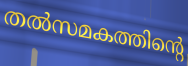
തൽസമകത്തിന്റെ